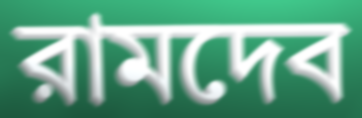
রামদেব